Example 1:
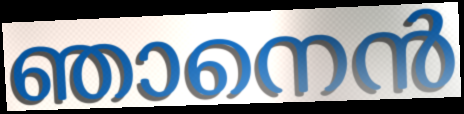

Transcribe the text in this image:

ഞാനെൻ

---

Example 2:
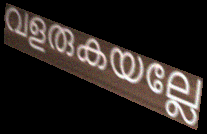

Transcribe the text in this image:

വളരുകയല്ലേ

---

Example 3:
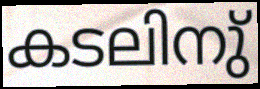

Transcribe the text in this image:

കടലിനു്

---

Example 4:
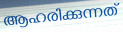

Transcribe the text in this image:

ആഹരിക്കുന്നത്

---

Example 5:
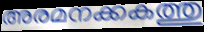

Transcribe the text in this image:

അരമനക്കകത്തു